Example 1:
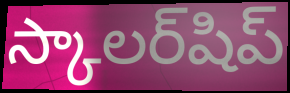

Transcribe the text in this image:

స్కాలర్‌షిప్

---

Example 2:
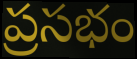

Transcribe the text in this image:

ప్రసభం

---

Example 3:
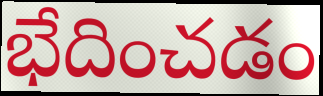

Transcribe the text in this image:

భేదించడం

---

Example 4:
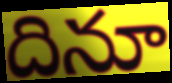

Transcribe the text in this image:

దినూ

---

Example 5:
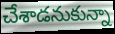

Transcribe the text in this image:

చేశాడనుకున్నా